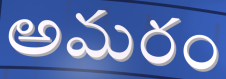
అమరం